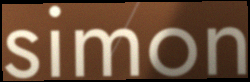
simon